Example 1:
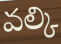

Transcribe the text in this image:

వల్కి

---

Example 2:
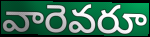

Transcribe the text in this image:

వారెవరూ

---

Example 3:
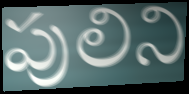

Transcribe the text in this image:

పులిని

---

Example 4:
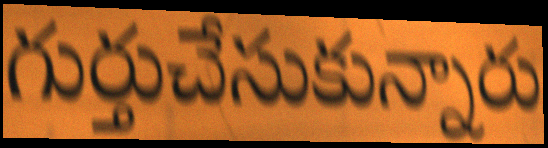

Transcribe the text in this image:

గుర్తుచేసుకున్నారు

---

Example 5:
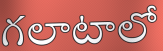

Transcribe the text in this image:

గలాటాలో